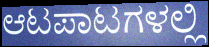
ಆಟಪಾಟಗಳಲ್ಲಿ